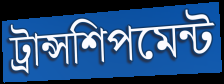
ট্রান্সশিপমেন্ট